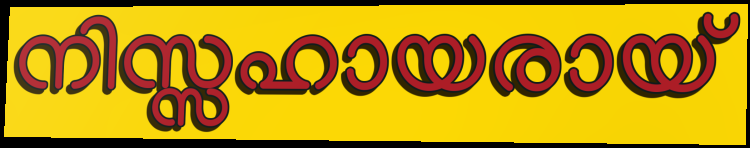
നിസ്സഹായരായ്